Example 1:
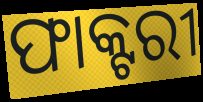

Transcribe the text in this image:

ଫାକ୍ଟରୀ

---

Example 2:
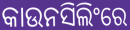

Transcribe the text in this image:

କାଉନସିଲିଂରେ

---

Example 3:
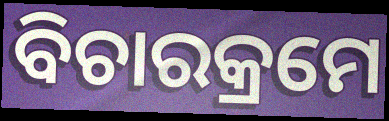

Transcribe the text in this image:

ବିଚାରକ୍ରମେ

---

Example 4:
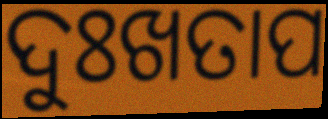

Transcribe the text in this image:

ଦୁଃଖତାପ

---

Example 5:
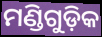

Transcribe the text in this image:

ମଣ୍ଡିଗୁଡ଼ିକ